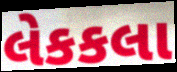
લેકકલા